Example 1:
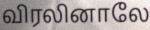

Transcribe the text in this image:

விரலினாலே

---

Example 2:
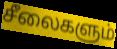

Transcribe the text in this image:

சீலைகளும்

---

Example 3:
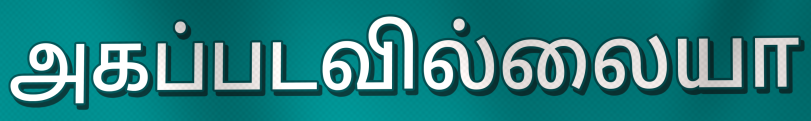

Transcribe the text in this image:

அகப்படவில்லையா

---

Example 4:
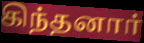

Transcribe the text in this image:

கிந்தனார்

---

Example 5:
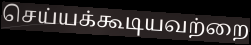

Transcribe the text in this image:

செய்யக்கூடியவற்றை